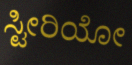
ಸ್ಟೀರಿಯೋ